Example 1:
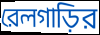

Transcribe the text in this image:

রেলগাড়ির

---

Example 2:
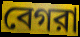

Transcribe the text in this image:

বেগরা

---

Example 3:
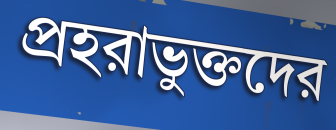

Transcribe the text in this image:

প্রহরাভুক্তদের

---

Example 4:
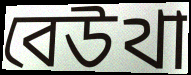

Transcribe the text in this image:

বেউথা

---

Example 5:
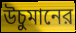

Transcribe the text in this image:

উচুমানের